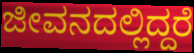
ಜೀವನದಲ್ಲಿದ್ದರೆ